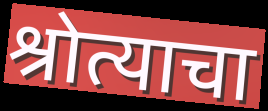
श्रोत्याचा